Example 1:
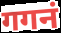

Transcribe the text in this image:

गगनं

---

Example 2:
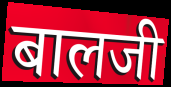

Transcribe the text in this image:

बालजी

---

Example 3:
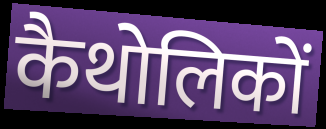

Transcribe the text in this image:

कैथोलिकों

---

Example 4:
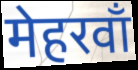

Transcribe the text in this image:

मेहरवाँ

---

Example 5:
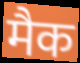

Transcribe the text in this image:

मैक